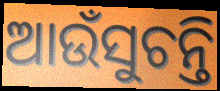
ଆଉଁସୁଚନ୍ତି